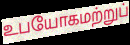
உபயோகமற்றுப்